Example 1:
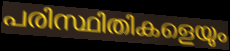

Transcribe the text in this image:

പരിസ്ഥിതികളെയും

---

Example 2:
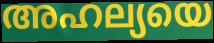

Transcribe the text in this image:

അഹല്യയെ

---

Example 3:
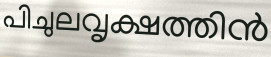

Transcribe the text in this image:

പിചുലവൃക്ഷത്തിൻ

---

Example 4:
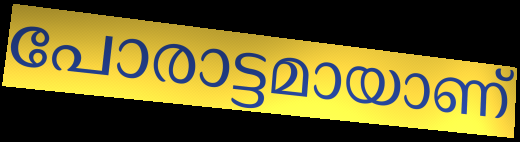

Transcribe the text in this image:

പോരാട്ടമായാണ്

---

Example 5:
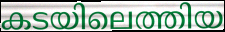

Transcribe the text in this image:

കടയിലെത്തിയ